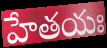
హేతయః